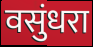
वसुंधरा